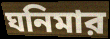
ঘনিমার